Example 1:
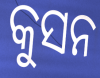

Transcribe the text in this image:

କୁସନ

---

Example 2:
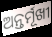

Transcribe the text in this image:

ଅନ୍ତର୍ମୂଖୀ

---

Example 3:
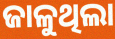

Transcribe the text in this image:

ଜାଳୁଥିଲା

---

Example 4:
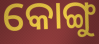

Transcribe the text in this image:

କୋଙ୍ଗୁ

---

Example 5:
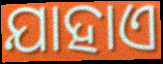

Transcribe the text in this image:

ଯାହାଏ